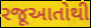
રજૂઆતોથી